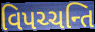
વિપચ્ચન્તિ